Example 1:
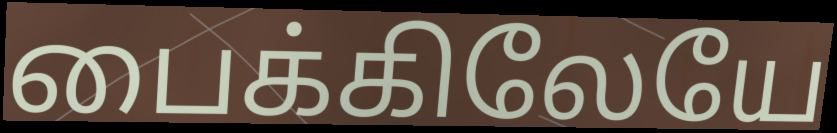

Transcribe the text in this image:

பைக்கிலேயே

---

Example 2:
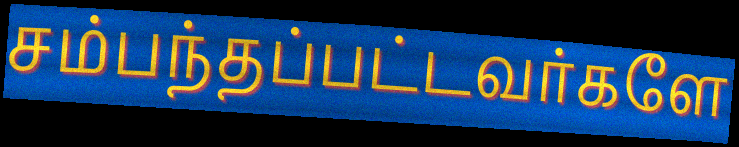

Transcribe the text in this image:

சம்பந்தப்பட்டவர்களே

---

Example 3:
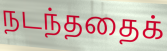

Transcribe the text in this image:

நடந்ததைக்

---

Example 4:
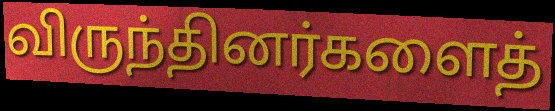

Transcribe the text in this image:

விருந்தினர்களைத்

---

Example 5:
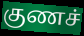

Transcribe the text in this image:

குணச்